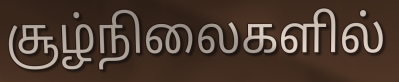
சூழ்நிலைகளில்